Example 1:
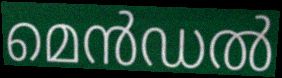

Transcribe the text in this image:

മെൻഡൽ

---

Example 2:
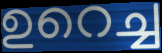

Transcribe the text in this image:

ഉറെച്ച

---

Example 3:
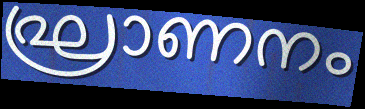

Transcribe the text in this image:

ഘ്രാണനം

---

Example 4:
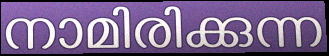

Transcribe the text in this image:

നാമിരിക്കുന്ന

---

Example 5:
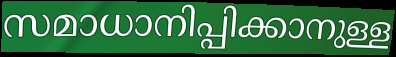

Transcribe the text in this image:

സമാധാനിപ്പിക്കാനുള്ള